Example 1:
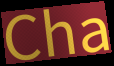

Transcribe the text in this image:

Cha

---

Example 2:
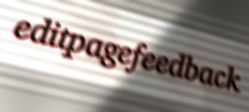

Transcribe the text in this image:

editpagefeedback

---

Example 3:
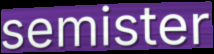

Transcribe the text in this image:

semister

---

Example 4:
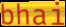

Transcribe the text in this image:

bhai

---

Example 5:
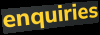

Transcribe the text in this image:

enquiries